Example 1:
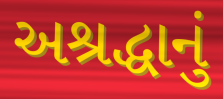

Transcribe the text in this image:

અશ્રદ્ધાનું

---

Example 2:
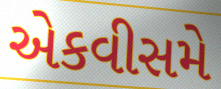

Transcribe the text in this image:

એકવીસમે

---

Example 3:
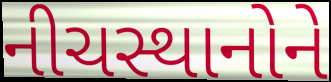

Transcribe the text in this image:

નીચસ્થાનોને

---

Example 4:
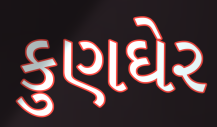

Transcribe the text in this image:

કુણઘેર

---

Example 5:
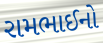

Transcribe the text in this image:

રામભાઈનો